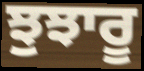
ਝੁਝਾਰੂ